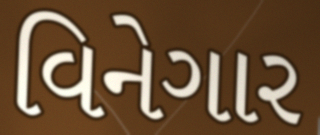
વિનેગાર